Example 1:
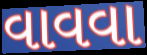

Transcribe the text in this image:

વાવવા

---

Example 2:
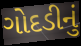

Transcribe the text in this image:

ગોદડીનું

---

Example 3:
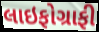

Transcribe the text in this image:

લાઇફોગ્રાફી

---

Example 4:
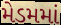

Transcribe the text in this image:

મેડમમાં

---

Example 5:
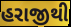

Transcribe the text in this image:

હરાજીથી